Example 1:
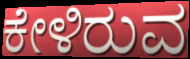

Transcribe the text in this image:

ಕೇಳಿರುವ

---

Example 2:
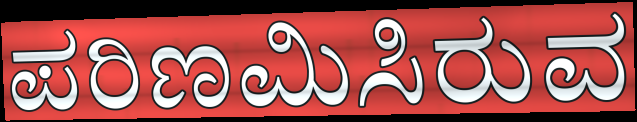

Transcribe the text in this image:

ಪರಿಣಮಿಸಿರುವ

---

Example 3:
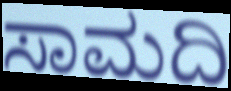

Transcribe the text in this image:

ಸಾಮದಿ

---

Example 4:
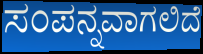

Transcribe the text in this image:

ಸಂಪನ್ನವಾಗಲಿದೆ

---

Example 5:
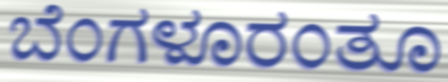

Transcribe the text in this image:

ಬೆಂಗಳೂರಂತೂ